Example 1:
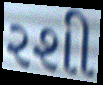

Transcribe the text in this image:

રશી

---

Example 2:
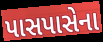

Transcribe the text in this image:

પાસપાસેના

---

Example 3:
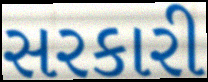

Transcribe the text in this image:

સરકારી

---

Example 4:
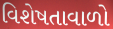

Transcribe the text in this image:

વિશેષતાવાળો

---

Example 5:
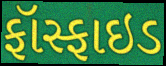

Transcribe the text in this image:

ફૉસ્ફાઇડ